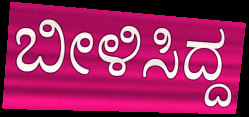
ಬೀಳಿಸಿದ್ದ